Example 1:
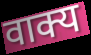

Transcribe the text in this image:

वाक्य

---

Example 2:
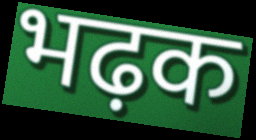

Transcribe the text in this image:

भढ़क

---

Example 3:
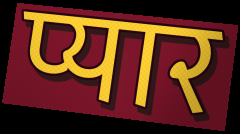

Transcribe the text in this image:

प्‍यार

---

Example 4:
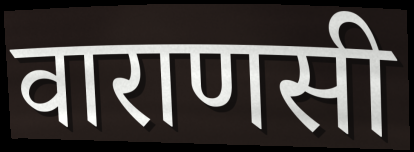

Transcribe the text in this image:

वाराणसी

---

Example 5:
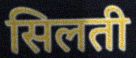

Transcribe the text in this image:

सिलती